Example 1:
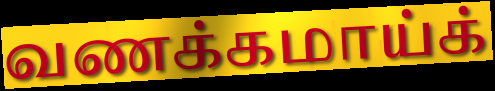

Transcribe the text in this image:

வணக்கமாய்க்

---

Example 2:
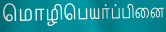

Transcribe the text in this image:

மொழிபெயர்ப்பினை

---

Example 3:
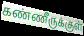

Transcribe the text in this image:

கண்ணீருக்குள்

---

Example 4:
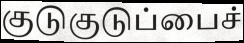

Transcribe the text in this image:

குடுகுடுப்பைச்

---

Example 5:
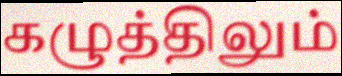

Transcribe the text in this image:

கழுத்திலும்